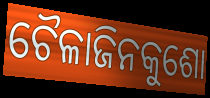
ଚୈଳାଜିନକୁଶୋ